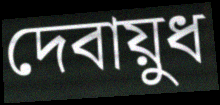
দেবায়ুধ